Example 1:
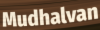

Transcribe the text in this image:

Mudhalvan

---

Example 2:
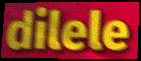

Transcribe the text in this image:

dilele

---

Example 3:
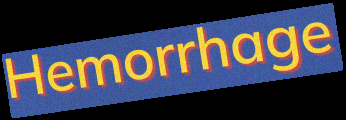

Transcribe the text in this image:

Hemorrhage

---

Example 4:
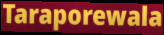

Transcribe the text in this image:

Taraporewala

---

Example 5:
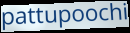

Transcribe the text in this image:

pattupoochi